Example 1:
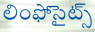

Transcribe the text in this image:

లింఫోసైట్స్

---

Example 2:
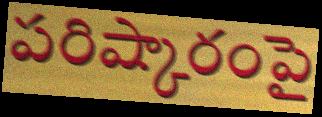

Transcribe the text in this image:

పరిష్కారంపై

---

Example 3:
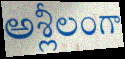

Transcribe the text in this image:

అశ్లీలంగా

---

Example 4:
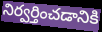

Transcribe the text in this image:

నిర్వర్తించడానికి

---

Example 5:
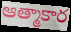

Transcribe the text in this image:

ఆత్మాకార